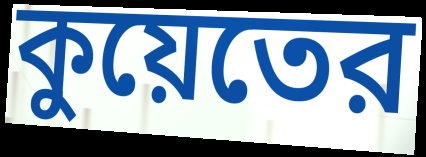
কুয়েতের